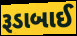
રૂડાબાઈ